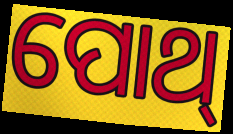
ପୋଥ୍